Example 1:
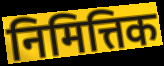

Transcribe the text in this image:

निमित्तिक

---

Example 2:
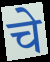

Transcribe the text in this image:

चे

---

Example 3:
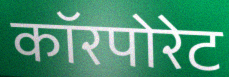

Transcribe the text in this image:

कॉरपोरेट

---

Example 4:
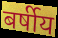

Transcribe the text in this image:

बर्षीय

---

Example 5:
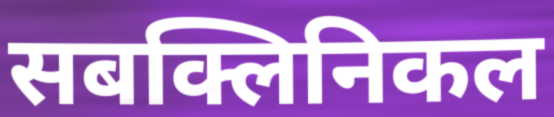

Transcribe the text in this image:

सबक्लिनिकल